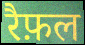
रैफ़ल